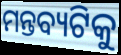
ମନ୍ତବ୍ୟଟିକୁ